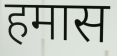
हमास